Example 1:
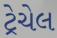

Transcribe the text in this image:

ટ્રેચેલ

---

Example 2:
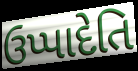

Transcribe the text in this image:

ઉપ્પાદેતિ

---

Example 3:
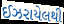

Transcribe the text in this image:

ઈઝરાયેલથી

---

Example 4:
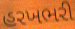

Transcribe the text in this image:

હરખભરી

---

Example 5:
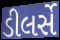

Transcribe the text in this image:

ડીલર્સે